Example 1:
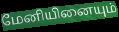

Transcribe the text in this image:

மேனியினையும்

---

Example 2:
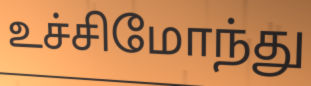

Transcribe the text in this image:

உச்சிமோந்து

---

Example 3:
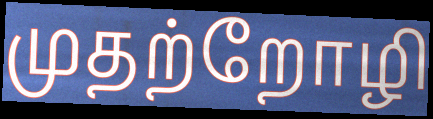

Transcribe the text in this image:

முதற்றோழி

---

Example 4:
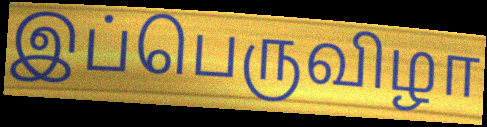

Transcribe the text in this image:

இப்பெருவிழா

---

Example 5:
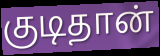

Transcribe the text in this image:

குடிதான்